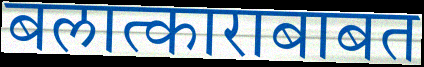
बलात्काराबाबत